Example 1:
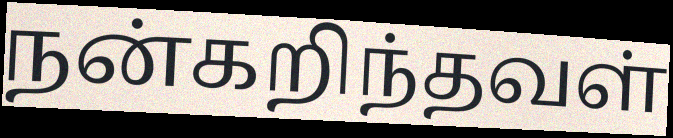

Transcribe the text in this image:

நன்கறிந்தவள்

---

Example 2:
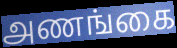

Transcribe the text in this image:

அணங்கை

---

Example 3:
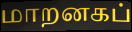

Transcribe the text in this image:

மாறனகப்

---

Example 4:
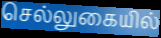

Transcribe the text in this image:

செல்லுகையில்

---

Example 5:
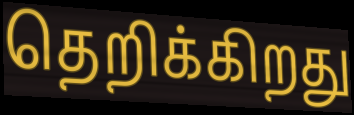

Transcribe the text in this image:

தெறிக்கிறது